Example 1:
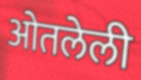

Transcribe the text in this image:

ओतलेली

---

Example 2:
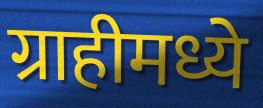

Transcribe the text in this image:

ग्राहीमध्ये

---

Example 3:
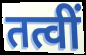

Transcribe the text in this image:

तत्वीं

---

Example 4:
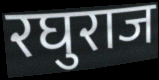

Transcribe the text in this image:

रघुराज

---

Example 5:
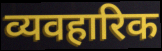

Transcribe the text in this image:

व्यवहारिक